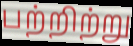
பற்றிற்று